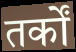
तर्कों